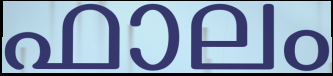
ഫാലം